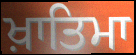
ਖ਼ਾਤਿਮਾ